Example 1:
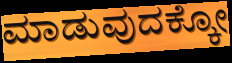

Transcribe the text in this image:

ಮಾಡುವುದಕ್ಕೋ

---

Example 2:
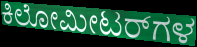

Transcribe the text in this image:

ಕಿಲೋಮೀಟರ್‌ಗಳ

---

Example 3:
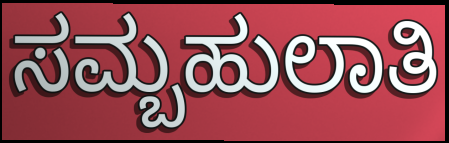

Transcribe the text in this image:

ಸಮ್ಬಹುಲಾತಿ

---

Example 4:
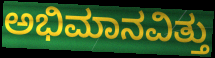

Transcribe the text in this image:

ಅಭಿಮಾನವಿತ್ತು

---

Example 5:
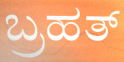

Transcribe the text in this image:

ಬ್ರಹತ್